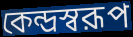
কেন্দ্রস্বরূপ